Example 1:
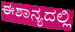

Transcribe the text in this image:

ಈಶಾನ್ಯದಲ್ಲಿ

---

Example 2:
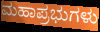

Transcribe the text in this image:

ಮಹಾಪ್ರಭುಗಳು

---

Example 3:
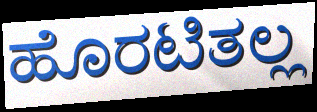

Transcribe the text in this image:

ಹೊರಟಿತಲ್ಲ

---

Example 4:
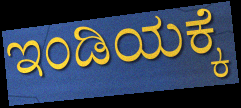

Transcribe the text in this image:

ಇಂಡಿಯಕ್ಕೆ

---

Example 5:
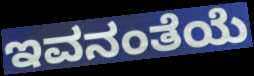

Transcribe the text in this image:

ಇವನಂತೆಯೆ